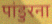
पांडुरना